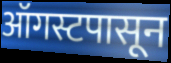
ऑगस्टपासून